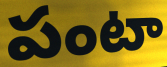
పంటా